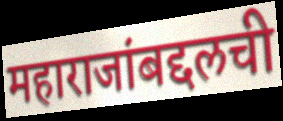
महाराजांबद्दलची